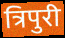
त्रिपुरी